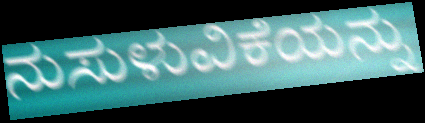
ನುಸುಳುವಿಕೆಯನ್ನು